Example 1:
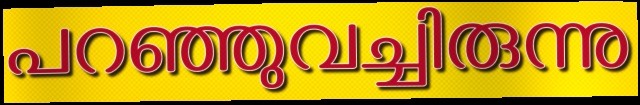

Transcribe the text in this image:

പറഞ്ഞുവച്ചിരുന്നു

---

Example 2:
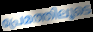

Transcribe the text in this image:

പ്രേമത്തിലൂടെ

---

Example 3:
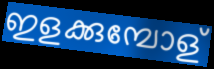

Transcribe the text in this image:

ഇളക്കുമ്പോള്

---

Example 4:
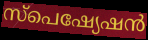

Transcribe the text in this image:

സ്പെഷ്യേഷൻ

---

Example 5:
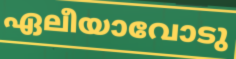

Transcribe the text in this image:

ഏലീയാവോടു